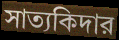
সাত্যকিদার